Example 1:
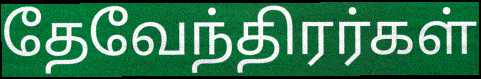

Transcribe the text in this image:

தேவேந்திரர்கள்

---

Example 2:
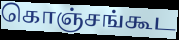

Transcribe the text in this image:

கொஞ்சங்கூட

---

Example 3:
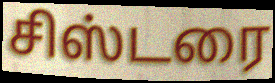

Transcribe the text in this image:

சிஸ்டரை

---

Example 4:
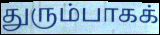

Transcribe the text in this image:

துரும்பாகக்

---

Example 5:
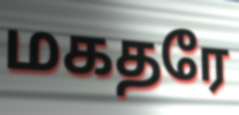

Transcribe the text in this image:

மகதரே